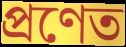
প্ৰণেত